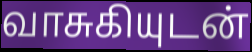
வாசுகியுடன்